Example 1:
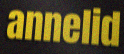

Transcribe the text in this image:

annelid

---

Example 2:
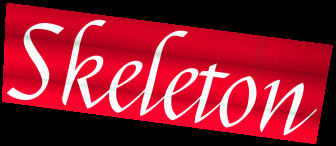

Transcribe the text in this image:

Skeleton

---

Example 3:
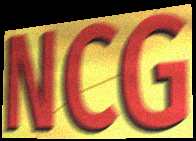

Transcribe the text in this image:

NCG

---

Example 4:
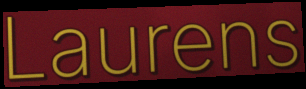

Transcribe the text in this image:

Laurens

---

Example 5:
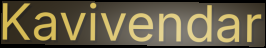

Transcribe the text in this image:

Kavivendar